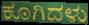
ಕೂಗಿದಳು